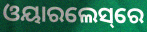
ଓୟାରଲେସ୍‌ରେ